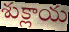
శుక్లాయ